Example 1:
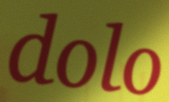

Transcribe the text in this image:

dolo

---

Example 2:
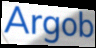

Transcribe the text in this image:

Argob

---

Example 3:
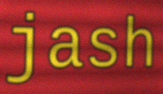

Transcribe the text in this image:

jash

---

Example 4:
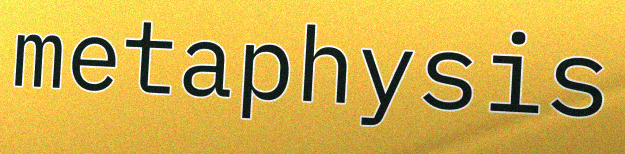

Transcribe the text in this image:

metaphysis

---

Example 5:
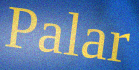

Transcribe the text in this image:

Palar